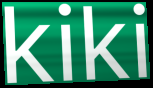
kiki